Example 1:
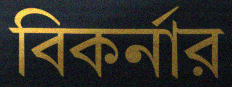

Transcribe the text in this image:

বিকর্নার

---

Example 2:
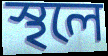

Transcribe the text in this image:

স্থলে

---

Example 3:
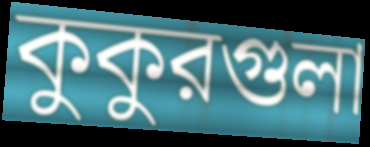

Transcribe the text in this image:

কুকুরগুলা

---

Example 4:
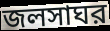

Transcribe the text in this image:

জলসাঘর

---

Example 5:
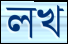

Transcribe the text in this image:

লখ